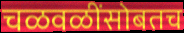
चळवळींसोबतच